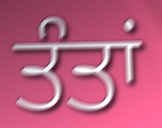
ਤੰਤਾਂ